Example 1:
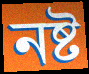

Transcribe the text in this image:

নষ্ট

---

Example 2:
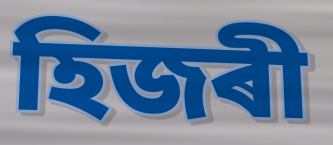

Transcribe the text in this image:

হিজৰী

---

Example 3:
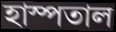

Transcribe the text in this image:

হাস্পতাল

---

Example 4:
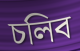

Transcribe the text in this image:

চলিব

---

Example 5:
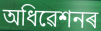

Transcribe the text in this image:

অধিৱেশনৰ